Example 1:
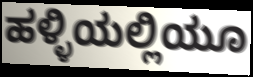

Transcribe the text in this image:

ಹಳ್ಳಿಯಲ್ಲಿಯೂ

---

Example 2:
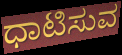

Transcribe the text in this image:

ಧಾಟಿಸುವ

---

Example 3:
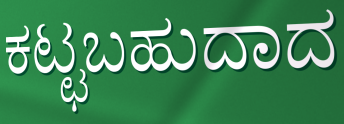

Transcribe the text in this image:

ಕಟ್ಟಬಹುದಾದ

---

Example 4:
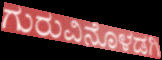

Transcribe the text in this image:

ಗುರುವಿನೊಳಡಗಿ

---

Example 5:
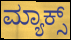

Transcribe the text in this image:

ಮ್ಯಾಕ್ಸ್